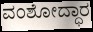
ವಂಶೋದ್ಧಾರ